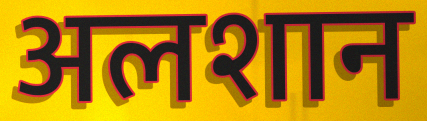
अलशान